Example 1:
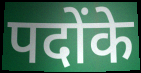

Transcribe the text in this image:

पदोंके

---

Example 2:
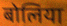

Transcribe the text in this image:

बोलिया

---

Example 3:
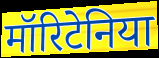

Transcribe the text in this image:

मॉरिटेनिया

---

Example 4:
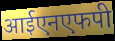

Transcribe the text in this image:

आईएनएफपी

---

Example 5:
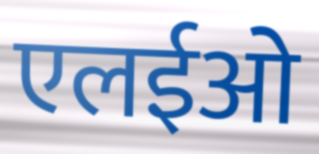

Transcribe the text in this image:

एलईओ